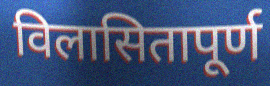
विलासितापूर्ण